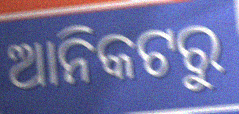
ଆନିକଟରୁ